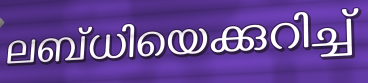
ലബ്ധിയെക്കുറിച്ച്